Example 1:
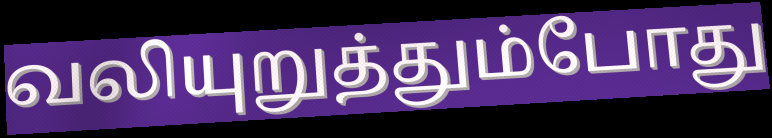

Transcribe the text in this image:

வலியுறுத்தும்போது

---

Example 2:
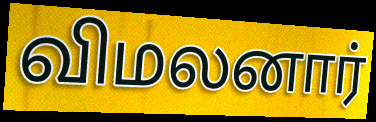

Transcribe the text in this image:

விமலனார்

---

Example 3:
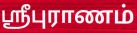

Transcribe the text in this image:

ஸ்ரீபுராணம்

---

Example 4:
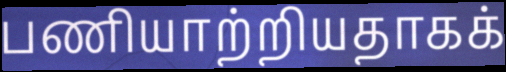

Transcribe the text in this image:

பணியாற்றியதாகக்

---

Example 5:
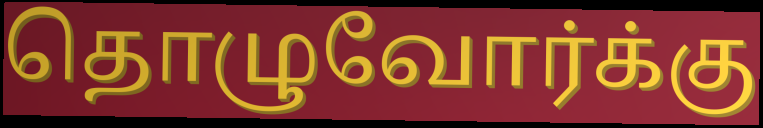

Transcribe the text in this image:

தொழுவோர்க்கு